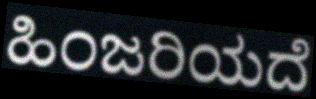
ಹಿಂಜರಿಯದೆ